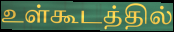
உள்கூடத்தில்